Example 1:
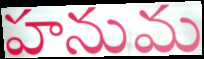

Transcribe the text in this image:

హనుమ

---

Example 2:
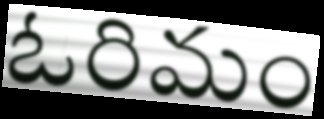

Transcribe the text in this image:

ఓరిమం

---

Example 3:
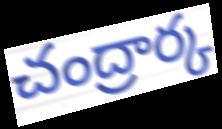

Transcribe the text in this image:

చంద్రార్క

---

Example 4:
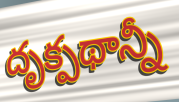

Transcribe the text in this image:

దృక్పథాన్నీ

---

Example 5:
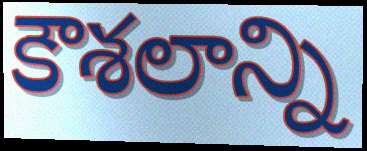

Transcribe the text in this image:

కౌశలాన్ని